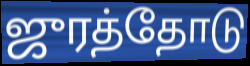
ஜுரத்தோடு